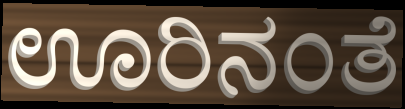
ಊರಿನಂತೆ